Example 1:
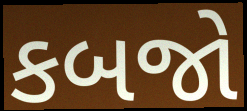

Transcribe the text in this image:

કબજો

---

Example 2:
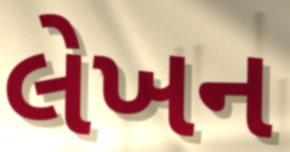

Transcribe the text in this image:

લેખન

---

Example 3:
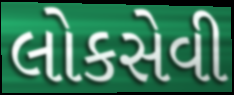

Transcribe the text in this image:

લોકસેવી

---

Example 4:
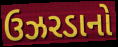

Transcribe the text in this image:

ઉઝરડાનો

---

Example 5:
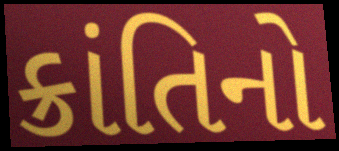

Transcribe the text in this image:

ક્રાંતિનો